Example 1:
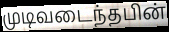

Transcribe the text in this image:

முடிவடைந்தபின்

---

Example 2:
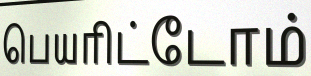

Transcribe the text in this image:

பெயரிட்டோம்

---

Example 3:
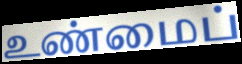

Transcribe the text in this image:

உண்மைப்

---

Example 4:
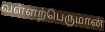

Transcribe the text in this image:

வள்ளற்பெருமான்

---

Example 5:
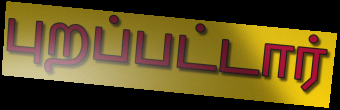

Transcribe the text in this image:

புறப்பட்டார்